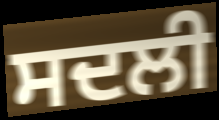
ਸਦਲੀ